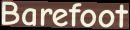
Barefoot